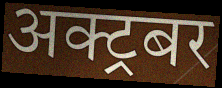
अक्ट्रबर